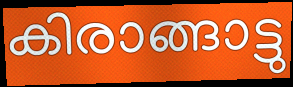
കിരാങ്ങാട്ടു